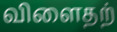
விளைதற்